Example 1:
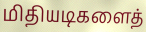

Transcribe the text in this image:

மிதியடிகளைத்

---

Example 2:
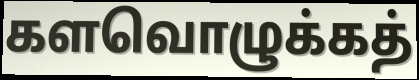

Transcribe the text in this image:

களவொழுக்கத்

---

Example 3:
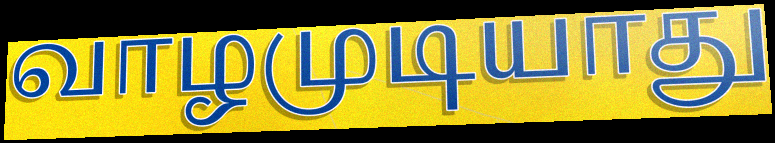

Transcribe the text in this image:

வாழமுடியாது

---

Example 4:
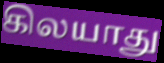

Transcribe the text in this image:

கிலயாது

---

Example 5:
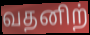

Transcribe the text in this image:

வதனிற்